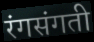
रंगसंगती